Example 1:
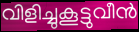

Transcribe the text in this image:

വിളിച്ചുകൂട്ടുവീൻ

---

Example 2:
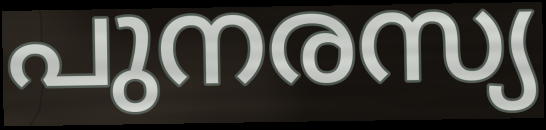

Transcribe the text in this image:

പുനരസ്യ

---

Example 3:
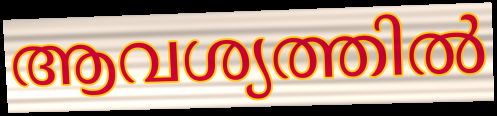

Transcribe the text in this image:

ആവശ്യത്തിൽ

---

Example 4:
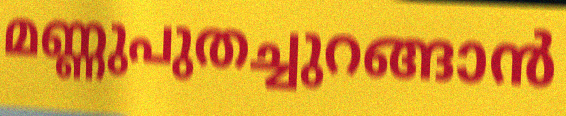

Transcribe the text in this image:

മണ്ണുപുതച്ചുറങ്ങാൻ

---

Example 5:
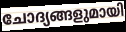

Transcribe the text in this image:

ചോദ്യങ്ങളുമായി